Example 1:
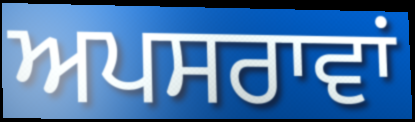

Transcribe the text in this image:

ਅਪਸਰਾਵਾਂ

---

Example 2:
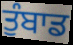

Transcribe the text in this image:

ਤੁੰਬਾਡ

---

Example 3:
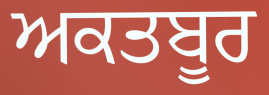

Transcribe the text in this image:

ਅਕਤਬੂਰ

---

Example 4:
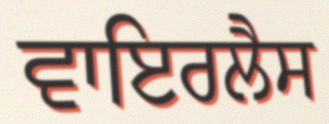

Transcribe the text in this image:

ਵਾਇਰਲੈਸ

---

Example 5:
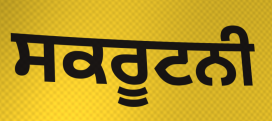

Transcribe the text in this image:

ਸਕਰੂਟਨੀ